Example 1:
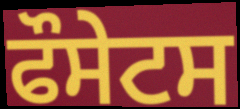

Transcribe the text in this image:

ਫੌਸੇਟਸ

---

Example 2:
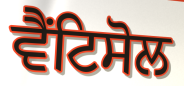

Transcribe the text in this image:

ਵੈਂਟਿਸੋਲ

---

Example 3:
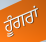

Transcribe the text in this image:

ਹੂੰਗਰਾਂ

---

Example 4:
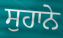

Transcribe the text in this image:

ਸੁਹਾਨੇ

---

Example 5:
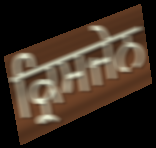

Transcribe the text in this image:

ਕ੍ਰਿਸਜੇਨ